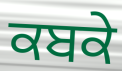
ਕਬਕੇ